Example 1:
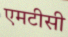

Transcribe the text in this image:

एमटीसी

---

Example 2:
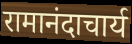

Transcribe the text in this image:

रामानंदाचार्य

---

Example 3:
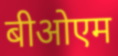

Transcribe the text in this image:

बीओएम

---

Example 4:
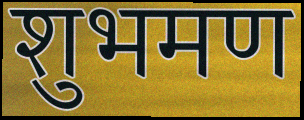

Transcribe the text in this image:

शुभमण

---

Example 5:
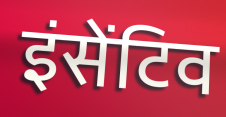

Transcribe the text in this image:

इंसेंटिव